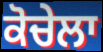
ਕੋਚੇਲਾ